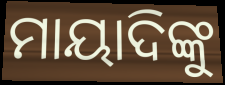
ମାୟାଦିଙ୍କୁ